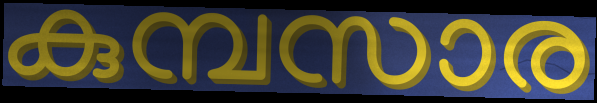
കുമ്പസാര